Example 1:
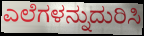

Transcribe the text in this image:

ಎಲೆಗಳನ್ನುದುರಿಸಿ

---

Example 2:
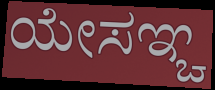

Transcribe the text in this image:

ಯೇಸಞ್ಚ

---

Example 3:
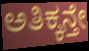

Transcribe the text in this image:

ಅತಿಕ್ಕನ್ತೇ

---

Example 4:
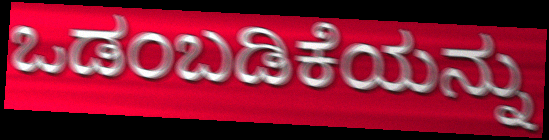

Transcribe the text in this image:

ಒಡಂಬಡಿಕೆಯನ್ನು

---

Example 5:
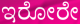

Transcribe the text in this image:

ಇರೋರೇ